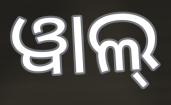
ୱାଲ୍